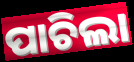
ପାଚିଲା